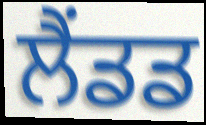
ਲੈਂਡਡ